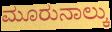
ಮೂರುನಾಲ್ಕು